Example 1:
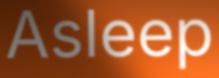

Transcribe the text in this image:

Asleep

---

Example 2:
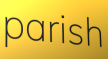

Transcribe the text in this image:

parish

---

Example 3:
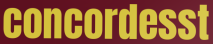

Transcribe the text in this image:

concordesst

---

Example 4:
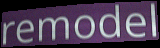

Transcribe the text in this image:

remodel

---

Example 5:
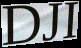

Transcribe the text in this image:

DJI